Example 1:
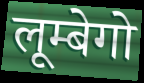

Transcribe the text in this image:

लूम्बेगो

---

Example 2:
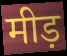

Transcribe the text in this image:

मीड़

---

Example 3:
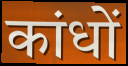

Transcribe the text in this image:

कांधों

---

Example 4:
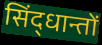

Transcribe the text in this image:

सिंद्धान्तों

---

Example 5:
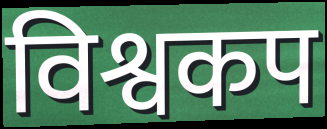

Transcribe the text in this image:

विश्वकप